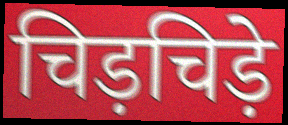
चिड़चिड़े